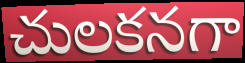
చులకనగా